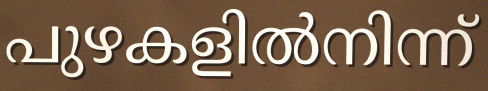
പുഴകളിൽനിന്ന്